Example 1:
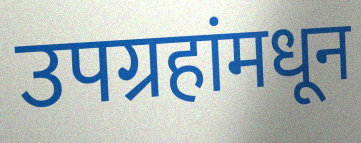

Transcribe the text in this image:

उपग्रहांमधून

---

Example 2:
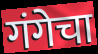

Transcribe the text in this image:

गंगेचा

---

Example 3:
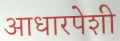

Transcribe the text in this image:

आधारपेशी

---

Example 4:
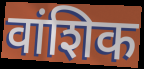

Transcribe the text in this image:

वांशिक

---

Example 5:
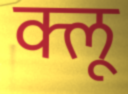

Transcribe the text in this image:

क्लू